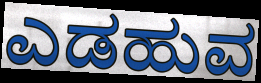
ಎಡಹುವ